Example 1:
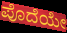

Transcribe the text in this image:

ಪೊದೆಯೇ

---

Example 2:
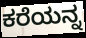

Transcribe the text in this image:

ಕರೆಯನ್ನ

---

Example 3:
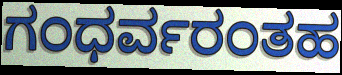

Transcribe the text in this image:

ಗಂಧರ್ವರಂತಹ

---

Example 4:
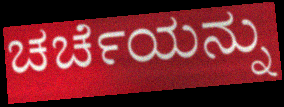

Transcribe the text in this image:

ಚರ್ಚೆಯನ್ನು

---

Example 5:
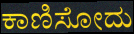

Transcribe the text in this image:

ಕಾಣಿಸೋದು